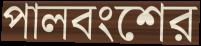
পালবংশের